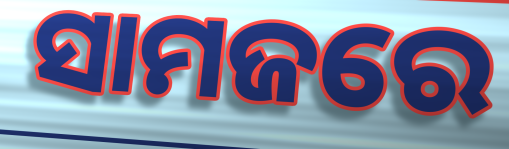
ସାମଜରେ